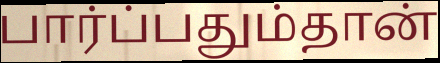
பார்ப்பதும்தான்